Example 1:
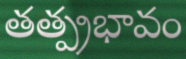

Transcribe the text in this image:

తత్ప్రభావం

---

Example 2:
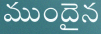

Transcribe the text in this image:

ముందైన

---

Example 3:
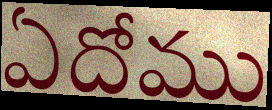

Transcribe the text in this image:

ఏదోము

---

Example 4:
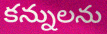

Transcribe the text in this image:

కన్నులను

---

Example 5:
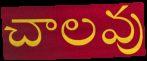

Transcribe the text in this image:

చాలవు